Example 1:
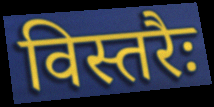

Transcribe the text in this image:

विस्तरैः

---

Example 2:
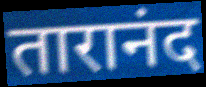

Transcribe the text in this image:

तारानंद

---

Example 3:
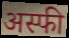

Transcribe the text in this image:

अस्फी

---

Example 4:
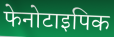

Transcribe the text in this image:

फेनोटाइपिक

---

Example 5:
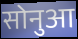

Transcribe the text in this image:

सोनुआ